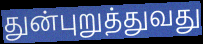
துன்புறுத்துவது